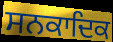
ਸਨਕਾਦਿਕ